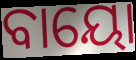
ବାୟୋ